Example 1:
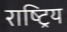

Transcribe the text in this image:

राष्ट्रिय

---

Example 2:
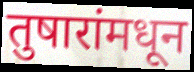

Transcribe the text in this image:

तुषारांमधून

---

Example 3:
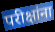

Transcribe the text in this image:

परीक्षांना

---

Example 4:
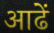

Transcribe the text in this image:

आढें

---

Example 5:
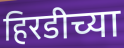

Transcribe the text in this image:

हिरडीच्या